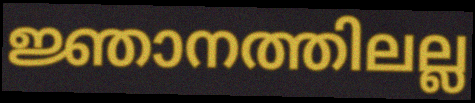
ജ്ഞാനത്തിലല്ല